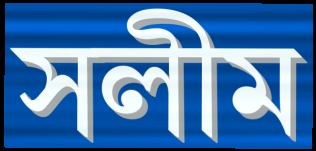
সলীম